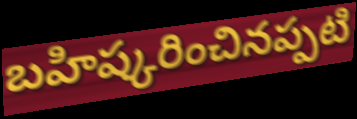
బహిష్కరించినప్పటి